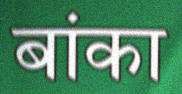
बांका